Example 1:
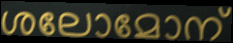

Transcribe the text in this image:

ശലോമോന്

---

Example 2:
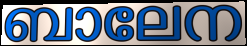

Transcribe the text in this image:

ബാലേന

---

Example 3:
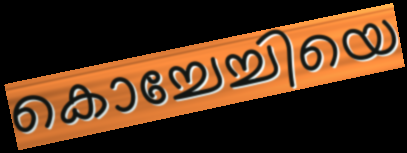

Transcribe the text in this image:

കൊച്ചേച്ചിയെ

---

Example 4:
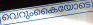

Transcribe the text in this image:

വെറുംകൈയോടെ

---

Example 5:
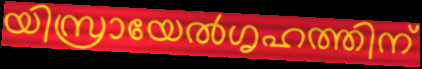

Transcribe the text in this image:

യിസ്രായേൽഗൃഹത്തിന്